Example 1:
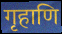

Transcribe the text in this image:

गृहाणि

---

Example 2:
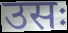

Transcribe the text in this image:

उसः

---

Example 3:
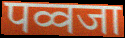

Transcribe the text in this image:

पव्वजा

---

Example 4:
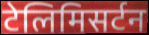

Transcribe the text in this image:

टेलिमिसर्टन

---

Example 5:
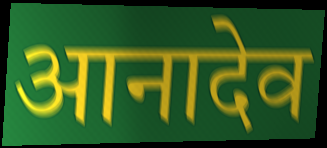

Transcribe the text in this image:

आनादेव